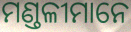
ମଣ୍ଡଳୀମାନେ